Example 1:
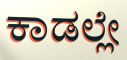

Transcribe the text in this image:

ಕಾಡಲ್ಲೇ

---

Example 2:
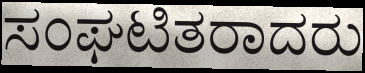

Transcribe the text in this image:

ಸಂಘಟಿತರಾದರು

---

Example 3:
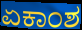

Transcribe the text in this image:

ಏಕಾಂಶ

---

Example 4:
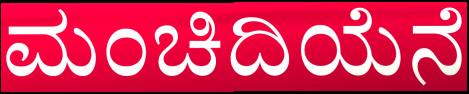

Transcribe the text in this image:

ಮಂಚಿದಿಯೆನೆ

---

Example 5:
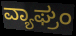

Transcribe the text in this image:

ವ್ಯಾಘ್ರಂ